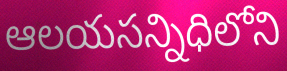
ఆలయసన్నిధిలోని